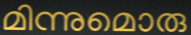
മിന്നുമൊരു